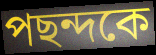
পছন্দকে